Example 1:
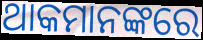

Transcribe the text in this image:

ଥାକମାନଙ୍କରେ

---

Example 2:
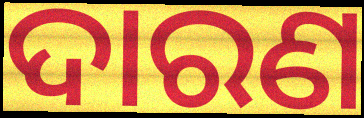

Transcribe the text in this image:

ଦାରଣ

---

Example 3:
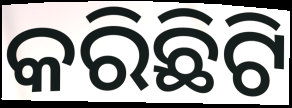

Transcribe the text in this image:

କରିଛିଟି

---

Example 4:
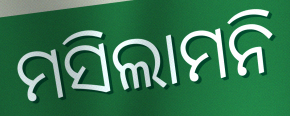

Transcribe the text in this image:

ମସିଲାମନି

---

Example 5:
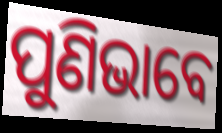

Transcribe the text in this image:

ପୁଣିଭାବେ